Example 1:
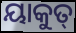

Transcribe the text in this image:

ୟାକୁତ୍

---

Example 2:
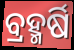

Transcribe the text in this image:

ବ୍ରହ୍ମର୍ଷି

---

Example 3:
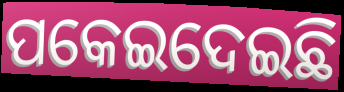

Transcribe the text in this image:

ପକେଇଦେଇଛି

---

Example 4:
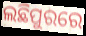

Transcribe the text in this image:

ଲଛିପୁରରେ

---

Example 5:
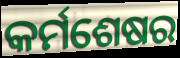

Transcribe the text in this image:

କର୍ମଶେଷର